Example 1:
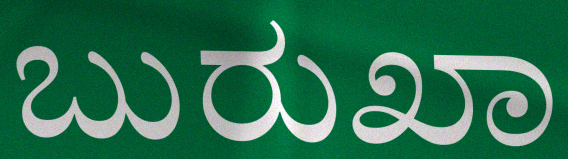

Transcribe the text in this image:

ಬುರುಖಾ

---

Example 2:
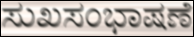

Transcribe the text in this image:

ಸುಖಸಂಭಾಷಣೆ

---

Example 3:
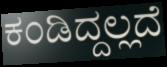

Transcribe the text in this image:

ಕಂಡಿದ್ದಲ್ಲದೆ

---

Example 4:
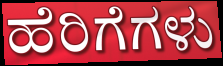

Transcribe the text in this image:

ಹೆರಿಗೆಗಳು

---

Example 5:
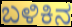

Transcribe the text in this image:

ಬಳಿಕಿನ